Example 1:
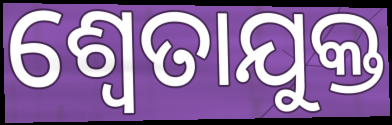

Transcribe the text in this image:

ଶ୍ଵେତାଯୁକ୍ତ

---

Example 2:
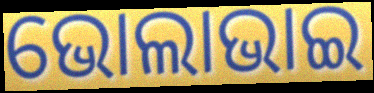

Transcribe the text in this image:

ଭୋଲାଭାଇ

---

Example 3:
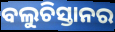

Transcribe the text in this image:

ବଲୁଚିସ୍ତାନର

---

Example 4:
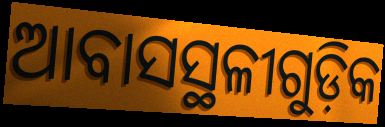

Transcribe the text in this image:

ଆବାସସ୍ଥଳୀଗୁଡ଼ିକ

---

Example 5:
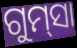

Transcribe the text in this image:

ଗୁମ୍‌ସା